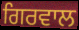
ਗਿਰਵਾਲ